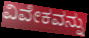
ವಿವೇಕವನ್ನು